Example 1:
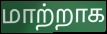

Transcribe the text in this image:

மாற்றாக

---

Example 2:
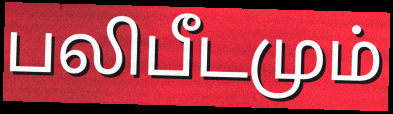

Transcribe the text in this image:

பலிபீடமும்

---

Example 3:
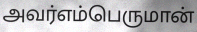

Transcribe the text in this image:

அவர்எம்பெருமான்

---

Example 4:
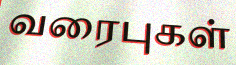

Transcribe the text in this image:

வரைபுகள்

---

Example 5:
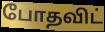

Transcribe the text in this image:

போதவிட்